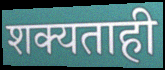
शक्‍यताही